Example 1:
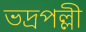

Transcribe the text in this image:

ভদ্রপল্লী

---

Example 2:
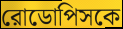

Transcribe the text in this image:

রোডোপিসকে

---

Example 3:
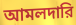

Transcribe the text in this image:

আমলদারি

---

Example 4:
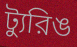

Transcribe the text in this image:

ট্যুরিঙ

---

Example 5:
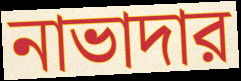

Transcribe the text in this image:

নাভাদার